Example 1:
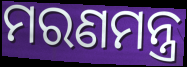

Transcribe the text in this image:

ମରଣମନ୍ତ୍ର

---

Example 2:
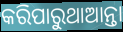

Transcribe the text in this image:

କରିପାରୁଥାଆନ୍ତା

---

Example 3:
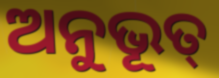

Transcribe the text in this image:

ଅନୁଭୂତ୍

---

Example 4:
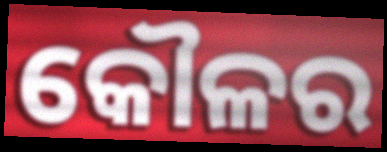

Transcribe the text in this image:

କୌଳର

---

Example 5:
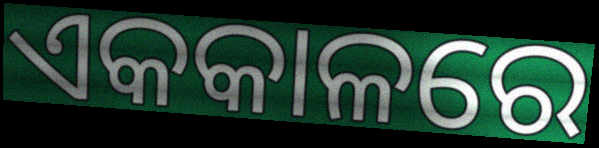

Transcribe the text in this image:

ଏକକାଳରେ